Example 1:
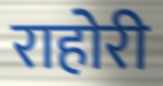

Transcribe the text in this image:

राहोरी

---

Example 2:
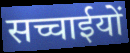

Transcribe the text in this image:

सच्चाईयों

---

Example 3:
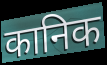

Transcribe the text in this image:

कानिक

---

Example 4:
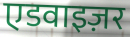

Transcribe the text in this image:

एडवाइज़र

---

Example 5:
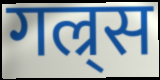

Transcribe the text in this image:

गल्र्स